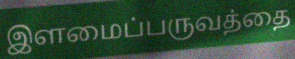
இளமைப்பருவத்தை